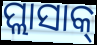
ପ୍ଲାସାକ୍